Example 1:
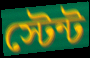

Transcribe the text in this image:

স্টেন্ট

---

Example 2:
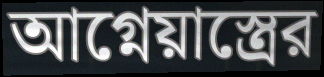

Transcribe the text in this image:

আগ্নেয়াস্ত্রের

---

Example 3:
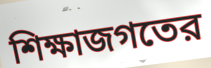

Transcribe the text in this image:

শিক্ষাজগতের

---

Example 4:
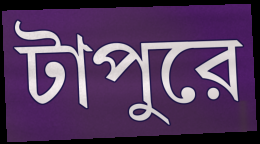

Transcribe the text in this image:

টাপুরে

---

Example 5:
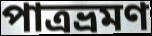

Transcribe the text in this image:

পাত্রভ্রমণ